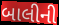
બાલીની